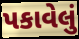
પકાવેલું